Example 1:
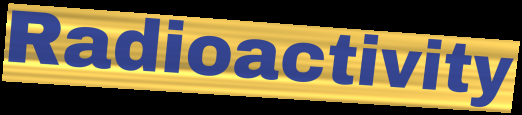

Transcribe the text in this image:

Radioactivity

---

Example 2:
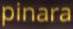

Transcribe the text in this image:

pinara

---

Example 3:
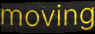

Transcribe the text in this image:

moving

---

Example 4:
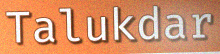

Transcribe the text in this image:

Talukdar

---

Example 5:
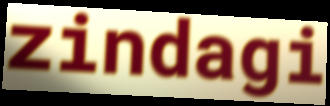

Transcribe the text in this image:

zindagi